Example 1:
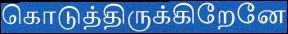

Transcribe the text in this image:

கொடுத்திருக்கிறேனே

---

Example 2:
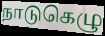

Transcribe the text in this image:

நாடுகெழு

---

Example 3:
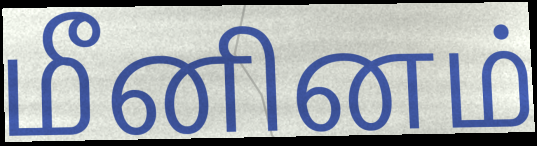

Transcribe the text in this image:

மீனினம்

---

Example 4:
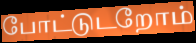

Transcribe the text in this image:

போட்டுடறோம்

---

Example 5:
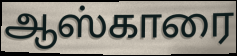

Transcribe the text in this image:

ஆஸ்காரை